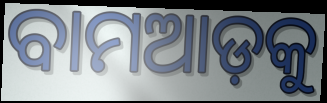
ବାମଆଡ଼କୁ